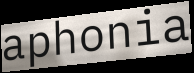
aphonia